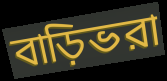
বাড়িভরা